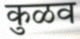
कुळव